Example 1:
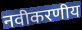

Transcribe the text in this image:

नवीकरणीय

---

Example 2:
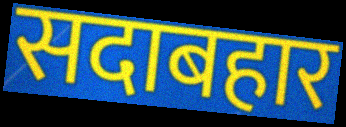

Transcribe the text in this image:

सदाबहार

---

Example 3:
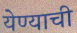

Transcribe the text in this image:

येण्याची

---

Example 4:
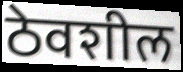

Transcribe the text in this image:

ठेवशील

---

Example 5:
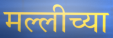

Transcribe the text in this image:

मल्लीच्या